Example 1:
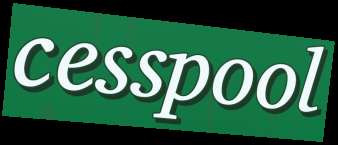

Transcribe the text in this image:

cesspool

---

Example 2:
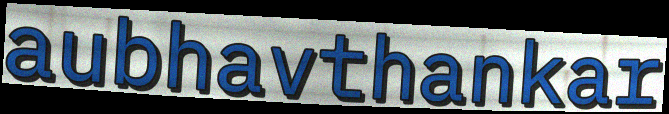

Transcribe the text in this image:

aubhavthankar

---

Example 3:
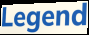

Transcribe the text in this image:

Legend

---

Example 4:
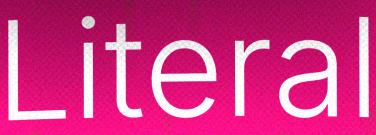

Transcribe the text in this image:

Literal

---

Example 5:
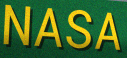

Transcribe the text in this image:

NASA